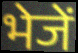
भेजें